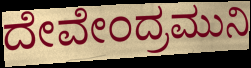
ದೇವೇಂದ್ರಮುನಿ